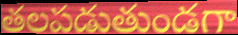
తలపడుతుండగా